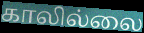
காலில்லை